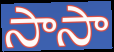
సాసా